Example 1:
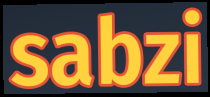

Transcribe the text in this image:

sabzi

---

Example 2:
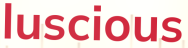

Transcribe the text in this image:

luscious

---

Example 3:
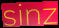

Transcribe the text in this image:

sinz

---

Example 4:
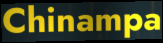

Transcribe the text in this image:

Chinampa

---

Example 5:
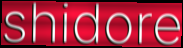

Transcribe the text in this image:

shidore